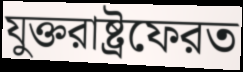
যুক্তরাষ্ট্রফেরত